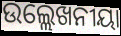
ଉଲ୍ଲେଖନୀୟା